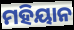
ମହିୟାନ